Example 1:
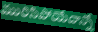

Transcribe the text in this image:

మురిసిపోయేదాన్నో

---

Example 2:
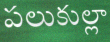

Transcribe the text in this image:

పలుకుల్లా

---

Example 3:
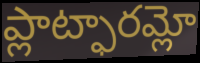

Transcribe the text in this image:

ప్లాట్ఫారమ్లో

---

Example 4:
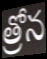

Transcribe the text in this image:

త్రోన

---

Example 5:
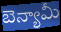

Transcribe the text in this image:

బెన్యామీ